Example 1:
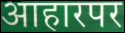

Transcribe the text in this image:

आहारपर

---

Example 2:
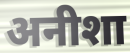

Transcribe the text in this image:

अनीशा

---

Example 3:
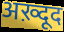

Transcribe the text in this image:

अख़्दूद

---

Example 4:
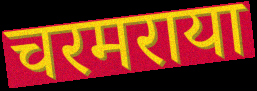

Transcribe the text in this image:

चरमराया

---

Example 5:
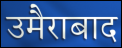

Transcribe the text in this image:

उमैराबाद